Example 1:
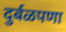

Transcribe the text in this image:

दुर्बळपणा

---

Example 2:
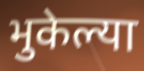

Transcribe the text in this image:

भुकेल्या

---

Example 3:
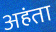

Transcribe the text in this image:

अहंता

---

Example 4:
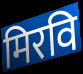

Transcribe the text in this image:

मिरवि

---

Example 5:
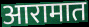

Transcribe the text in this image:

आरामात